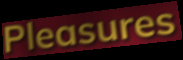
Pleasures